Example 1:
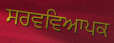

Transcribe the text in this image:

ਸਰਵਵਿਆਪਕ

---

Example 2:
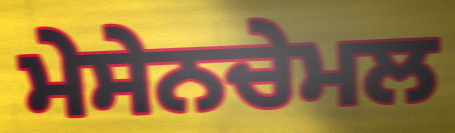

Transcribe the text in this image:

ਮੇਸੇਨਚੇਮਲ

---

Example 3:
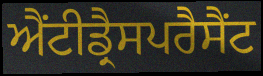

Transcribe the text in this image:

ਐਂਟੀਡ੍ਰੈਸਪਰੈਸੈਂਟ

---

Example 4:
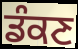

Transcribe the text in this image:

ਡੰਕਣ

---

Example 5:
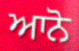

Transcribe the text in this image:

ਆਨੋ